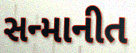
સન્માનીત